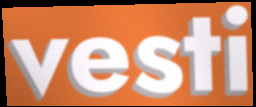
vesti